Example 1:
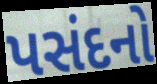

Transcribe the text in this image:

પસંદનો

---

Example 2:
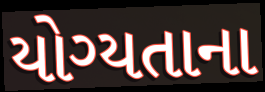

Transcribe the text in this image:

યોગ્યતાના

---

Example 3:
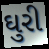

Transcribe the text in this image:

ઘુરી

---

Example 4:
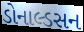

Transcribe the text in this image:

ડોનાલ્ડસન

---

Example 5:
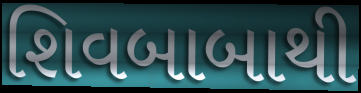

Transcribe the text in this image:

શિવબાબાથી